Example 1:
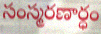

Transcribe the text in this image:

సంస్మరణార్ధం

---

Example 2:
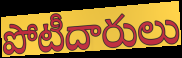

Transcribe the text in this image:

పోటీదారులు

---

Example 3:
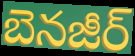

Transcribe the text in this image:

బెనజీర్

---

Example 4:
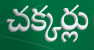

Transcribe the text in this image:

చక్కర్లు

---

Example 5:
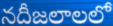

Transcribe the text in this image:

నదీజలాలలో